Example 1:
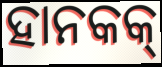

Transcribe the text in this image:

ହାନକକ୍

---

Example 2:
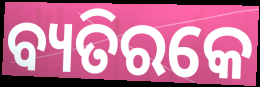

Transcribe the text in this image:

ବ୍ୟତିରକେ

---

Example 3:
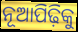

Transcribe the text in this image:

ନୂଆପିଢ଼ିକୁ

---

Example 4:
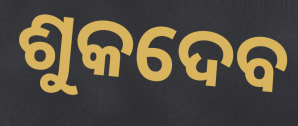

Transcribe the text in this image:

ଶୁକଦେବ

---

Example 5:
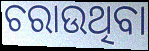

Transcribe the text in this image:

ଚରାଉଥିବା